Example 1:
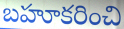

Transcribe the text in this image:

బహూకరించి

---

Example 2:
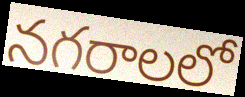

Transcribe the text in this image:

నగరాలలో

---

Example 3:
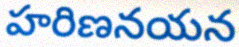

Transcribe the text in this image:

హరిణనయన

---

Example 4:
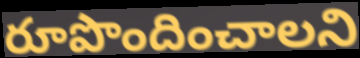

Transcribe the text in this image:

రూపొందించాలని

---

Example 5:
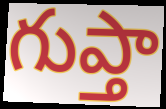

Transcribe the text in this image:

గుప్తా